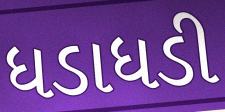
ધડાધડી